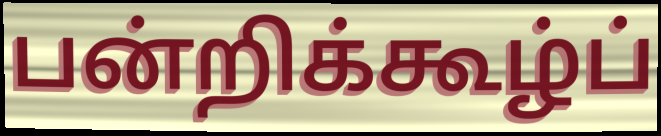
பன்றிக்கூழ்ப்